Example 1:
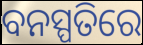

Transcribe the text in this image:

ବନସ୍ପତିରେ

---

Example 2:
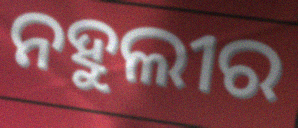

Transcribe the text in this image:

ନହୁଲୀର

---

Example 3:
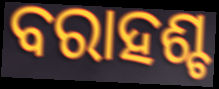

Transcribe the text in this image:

ବରାହଶ୍ଚ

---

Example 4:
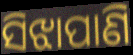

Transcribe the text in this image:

ସିଝାପାଣି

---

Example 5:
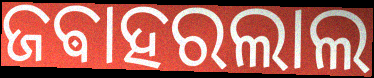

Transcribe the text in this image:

ଜଵାହରଲାଲ